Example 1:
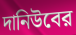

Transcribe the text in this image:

দানিউবের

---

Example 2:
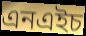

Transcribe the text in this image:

এনএইচ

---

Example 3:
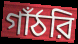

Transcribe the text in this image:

গাঁঠরি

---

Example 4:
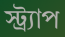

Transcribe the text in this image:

স্ট্র্যাপ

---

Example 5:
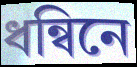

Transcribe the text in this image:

ধন্বিনে